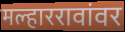
मल्हाररावांवर